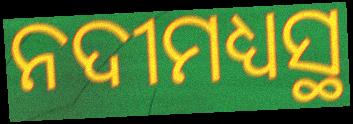
ନଦୀମଧ୍ୟସ୍ଥ